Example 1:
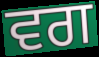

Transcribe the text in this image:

ਵਗ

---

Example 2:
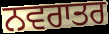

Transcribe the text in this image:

ਨਵਰਾਤਰ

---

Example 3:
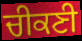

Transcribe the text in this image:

ਚੀਕਣੀ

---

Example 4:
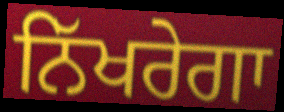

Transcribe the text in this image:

ਨਿੱਖਰੇਗਾ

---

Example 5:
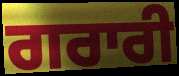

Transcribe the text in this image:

ਗਰਾਰੀ